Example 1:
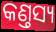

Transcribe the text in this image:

କଣ୍ତସ୍ୟ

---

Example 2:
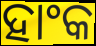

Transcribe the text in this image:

ହାଂକ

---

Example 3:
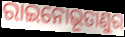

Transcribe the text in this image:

ରାଇନୋଭୂତାଣୁର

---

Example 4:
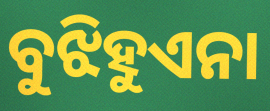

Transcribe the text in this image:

ବୁଝିହୁଏନା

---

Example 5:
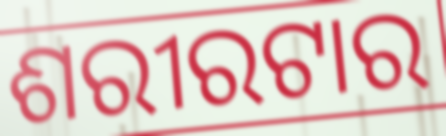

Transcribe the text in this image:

ଶରୀରଟାର